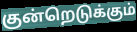
குன்றெடுக்கும்